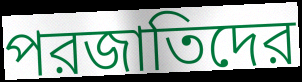
পরজাতিদের